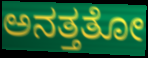
ಅನತ್ತತೋ